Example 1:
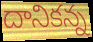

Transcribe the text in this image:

దానికన్న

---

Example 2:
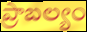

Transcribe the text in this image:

ప్రాబల్యం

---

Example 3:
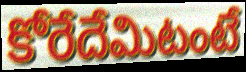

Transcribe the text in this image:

కోరేదేమిటంటే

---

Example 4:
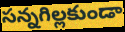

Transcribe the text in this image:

సన్నగిల్లకుండా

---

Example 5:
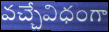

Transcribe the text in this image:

వచ్చేవిధంగా